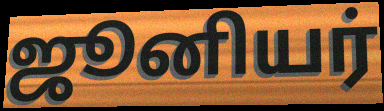
ஜூனியர்